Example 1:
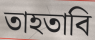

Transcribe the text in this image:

তাহতাবি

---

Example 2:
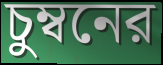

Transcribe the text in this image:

চুম্বনের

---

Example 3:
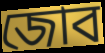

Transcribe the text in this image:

জোব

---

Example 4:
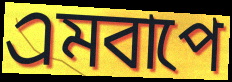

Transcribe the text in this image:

এমবাপে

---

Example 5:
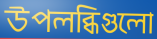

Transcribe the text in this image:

উপলব্ধিগুলো